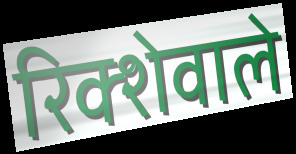
रिक्‍शेवाले